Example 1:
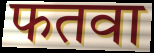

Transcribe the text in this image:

फतवा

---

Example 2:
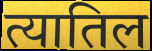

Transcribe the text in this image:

त्यातिल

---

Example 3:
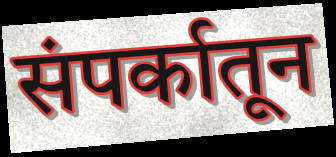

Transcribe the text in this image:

संपर्कातून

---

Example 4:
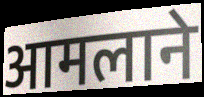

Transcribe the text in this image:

आमलाने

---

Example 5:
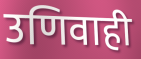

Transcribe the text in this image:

उणिवाही